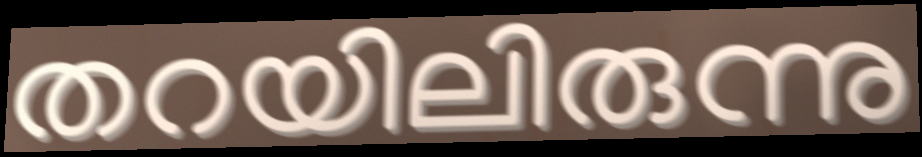
തറയിലിരുന്നു